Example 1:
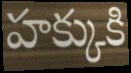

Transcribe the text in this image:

హక్కుకి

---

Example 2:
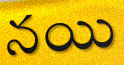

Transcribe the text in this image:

నయి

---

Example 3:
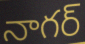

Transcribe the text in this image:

నాగర్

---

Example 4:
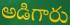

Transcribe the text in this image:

అడిగారు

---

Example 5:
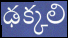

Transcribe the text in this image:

ఢక్కలి